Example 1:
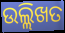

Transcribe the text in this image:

ଉଲ୍ଲିଖତ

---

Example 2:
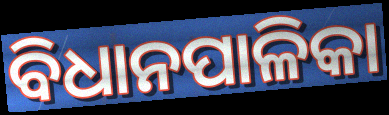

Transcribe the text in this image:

ବିଧାନପାଳିକା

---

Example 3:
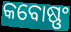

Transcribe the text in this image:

କବୋଷ୍ଣଂ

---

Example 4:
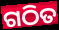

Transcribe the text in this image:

ଗଠିତ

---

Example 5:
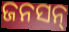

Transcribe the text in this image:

ଜନସନ୍